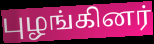
புழங்கினர்